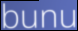
bunu